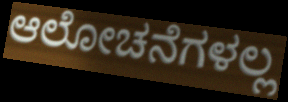
ಆಲೋಚನೆಗಳಲ್ಲ